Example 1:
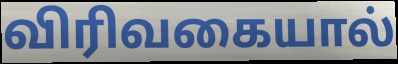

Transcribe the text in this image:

விரிவகையால்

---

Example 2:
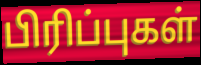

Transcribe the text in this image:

பிரிப்புகள்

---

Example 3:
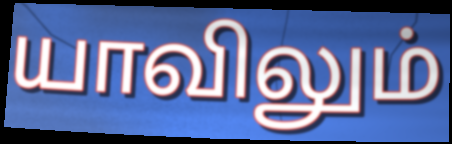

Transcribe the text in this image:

யாவிலும்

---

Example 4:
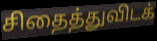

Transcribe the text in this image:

சிதைத்துவிடக்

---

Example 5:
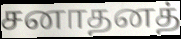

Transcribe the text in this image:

சனாதனத்